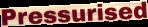
Pressurised